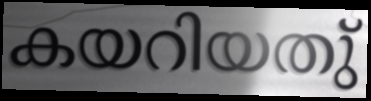
കയറിയതു്